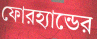
ফোরহ্যান্ডের